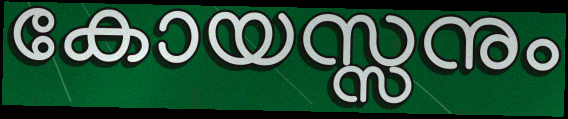
കോയസ്സനും